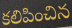
కలిపించిన